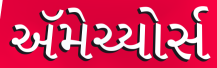
ઍમેચ્યોર્સ